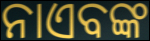
ନାଏବଙ୍କ